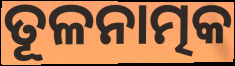
ତୂଳନାତ୍ମକ